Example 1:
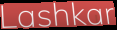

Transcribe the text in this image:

Lashkar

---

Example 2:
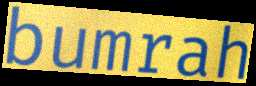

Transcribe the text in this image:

bumrah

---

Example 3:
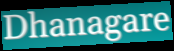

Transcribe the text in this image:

Dhanagare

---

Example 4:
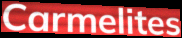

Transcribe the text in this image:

Carmelites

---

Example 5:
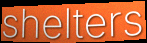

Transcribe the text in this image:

shelters